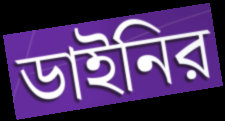
ডাইনির